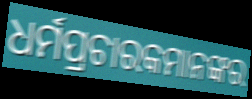
ଧର୍ମପ୍ରଚାରକମାନଙ୍କର